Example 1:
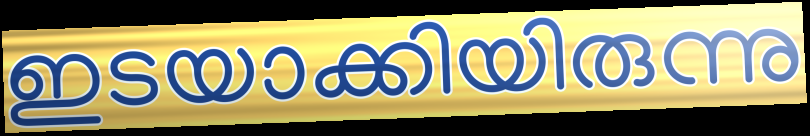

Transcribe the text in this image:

ഇടയാക്കിയിരുന്നു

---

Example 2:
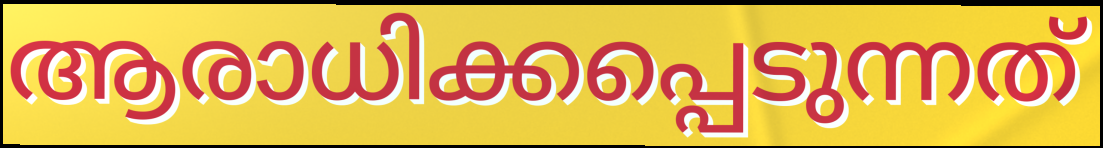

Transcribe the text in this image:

ആരാധിക്കപ്പെടുന്നത്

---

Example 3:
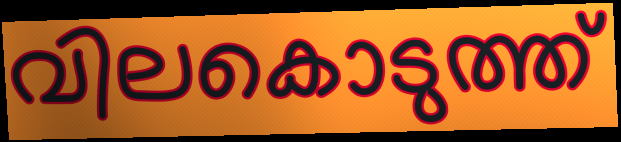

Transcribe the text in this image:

വിലകൊടുത്ത്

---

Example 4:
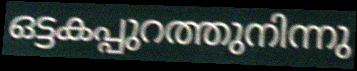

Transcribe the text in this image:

ഒട്ടകപ്പുറത്തുനിന്നു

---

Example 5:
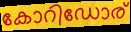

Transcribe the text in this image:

കോറിഡോര്